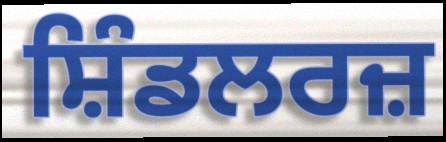
ਸ਼ਿੰਡਲਰਜ਼